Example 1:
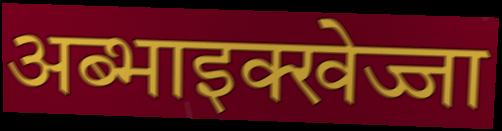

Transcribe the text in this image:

अब्भाइक्खेज्जा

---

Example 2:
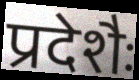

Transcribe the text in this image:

प्रदेशैः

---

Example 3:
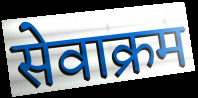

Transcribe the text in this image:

सेवाक्रम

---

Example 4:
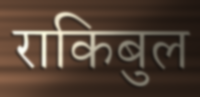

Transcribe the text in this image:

राकिबुल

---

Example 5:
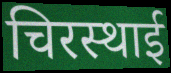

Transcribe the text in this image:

चिरस्थाई